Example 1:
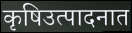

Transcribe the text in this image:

कृषिउत्पादनात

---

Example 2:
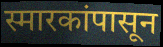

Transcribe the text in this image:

स्मारकांपासून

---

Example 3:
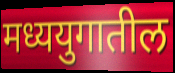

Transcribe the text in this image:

मध्ययुगातील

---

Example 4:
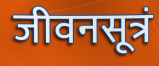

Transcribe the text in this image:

जीवनसूत्रं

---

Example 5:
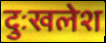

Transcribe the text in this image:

दुःखलेश